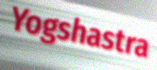
Yogshastra